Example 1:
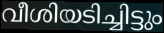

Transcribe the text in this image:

വീശിയടിച്ചിട്ടും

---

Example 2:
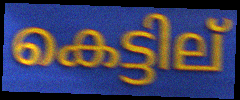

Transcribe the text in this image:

കെട്ടില്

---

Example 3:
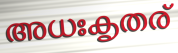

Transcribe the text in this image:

അധഃകൃതര്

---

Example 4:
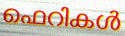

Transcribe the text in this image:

ഫെറികൾ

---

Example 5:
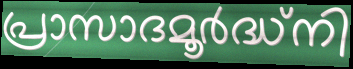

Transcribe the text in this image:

പ്രാസാദമൂർദ്ധ്നി